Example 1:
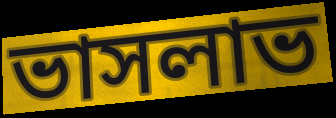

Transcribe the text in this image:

ভাসলাভ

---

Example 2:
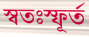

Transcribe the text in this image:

স্বতঃস্ফূর্ত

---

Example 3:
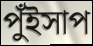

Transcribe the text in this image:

পুঁইসাপ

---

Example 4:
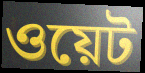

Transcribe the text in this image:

ওয়েট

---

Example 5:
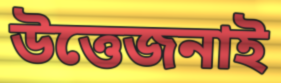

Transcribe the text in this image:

উত্তেজনাই